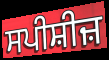
ਸਪੀਸ਼ੀਜ਼